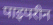
पाइपरीन